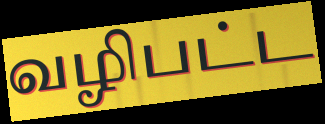
வழிபட்ட